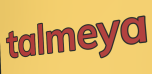
talmeya